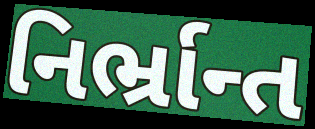
નિર્ભ્રાન્ત